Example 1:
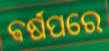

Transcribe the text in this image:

ଵର୍ଷପରେ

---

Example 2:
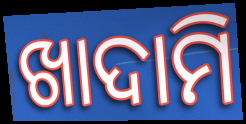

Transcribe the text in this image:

ଖାଦାମି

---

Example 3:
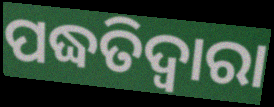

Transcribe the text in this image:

ପଦ୍ଧତିଦ୍ଵାରା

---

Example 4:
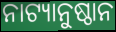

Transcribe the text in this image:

ନାଟ୍ୟାନୁଷ୍ଠାନ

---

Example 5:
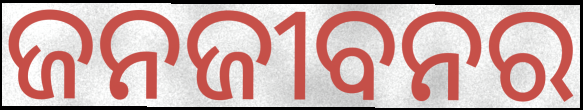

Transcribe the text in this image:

ଜନଜୀବନର